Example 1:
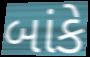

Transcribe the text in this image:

બાંકે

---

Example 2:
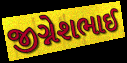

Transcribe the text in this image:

જીગ્નેશભાઈ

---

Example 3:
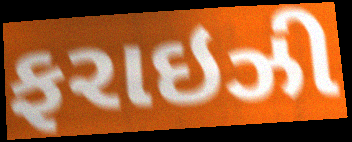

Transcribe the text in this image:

ફરાઇઝી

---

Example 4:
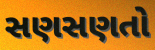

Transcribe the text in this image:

સણસણતો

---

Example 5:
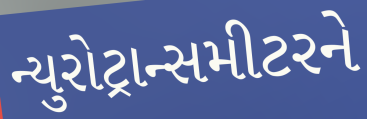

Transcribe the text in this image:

ન્યુરોટ્રાન્સમીટરને